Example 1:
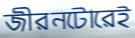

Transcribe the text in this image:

জীৱনটোৱেই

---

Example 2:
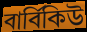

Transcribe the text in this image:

বাৰ্বিকিউ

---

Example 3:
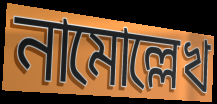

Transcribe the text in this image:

নামোল্লেখ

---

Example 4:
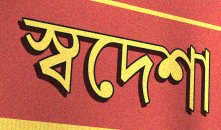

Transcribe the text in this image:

স্বদেশা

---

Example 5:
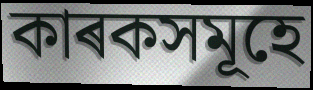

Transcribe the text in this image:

কাৰকসমূহে